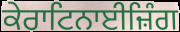
ਕੇਰਾਟਿਨਾਈਜ਼ਿੰਗ